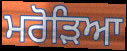
ਮਰੋੜਿਆ